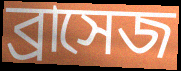
ব্রাসেজ